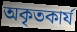
অকৃতকার্য